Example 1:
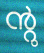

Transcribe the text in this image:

ന്റു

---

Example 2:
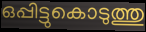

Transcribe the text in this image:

ഒപ്പിട്ടുകൊടുത്തു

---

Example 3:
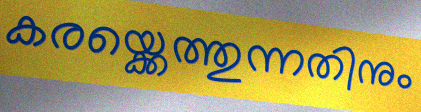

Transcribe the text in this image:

കരയ്ക്കെത്തുന്നതിനും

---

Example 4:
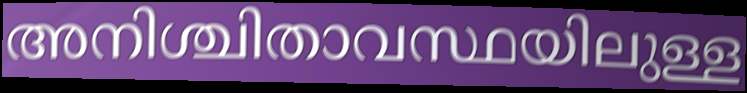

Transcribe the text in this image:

അനിശ്ചിതാവസ്ഥയിലുള്ള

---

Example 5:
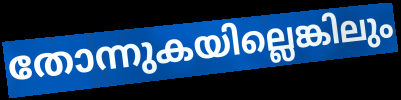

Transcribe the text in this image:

തോന്നുകയില്ലെങ്കിലും